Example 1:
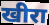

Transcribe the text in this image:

खीरा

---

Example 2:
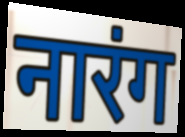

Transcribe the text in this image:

नारंग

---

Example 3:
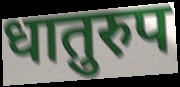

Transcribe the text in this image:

धातुरुप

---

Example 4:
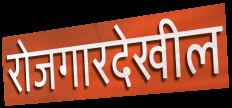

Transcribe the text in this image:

रोजगारदेखील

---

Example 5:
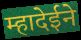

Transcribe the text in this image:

म्हादेईने